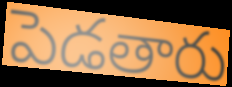
పెడతారు